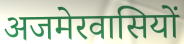
अजमेरवासियों